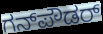
ಗನ್‌ಪೌಡರ್